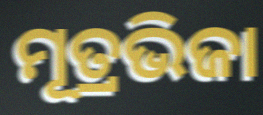
ମୂତ୍ରଭିଜା